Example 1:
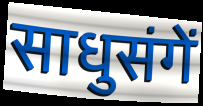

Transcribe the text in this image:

साधुसंगें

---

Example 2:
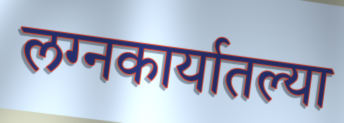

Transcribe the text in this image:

लग्नकार्यातल्या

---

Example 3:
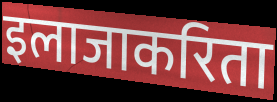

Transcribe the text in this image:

इलाजाकरिता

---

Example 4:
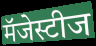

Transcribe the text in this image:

मॅजेस्टीज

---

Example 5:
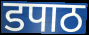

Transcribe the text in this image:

डपाठ